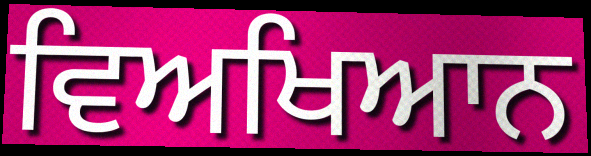
ਵਿਅਖਿਆਨ